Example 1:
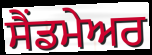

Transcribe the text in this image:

ਸੈਂਡਮੇਅਰ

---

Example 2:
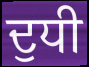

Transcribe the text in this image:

ਦੁਧੀ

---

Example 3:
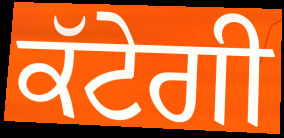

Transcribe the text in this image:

ਕੱਟੇਗੀ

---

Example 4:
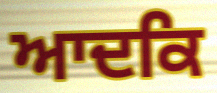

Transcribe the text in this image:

ਆਦਕਿ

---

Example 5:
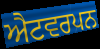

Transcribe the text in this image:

ਐਟਵਰਪਨ